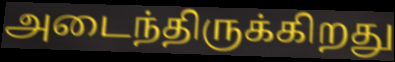
அடைந்திருக்கிறது